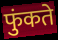
फुंकते